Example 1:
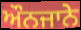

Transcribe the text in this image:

ਔਨਜਾਨੇ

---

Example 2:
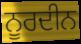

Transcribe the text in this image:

ਨੂਰਦੀਨ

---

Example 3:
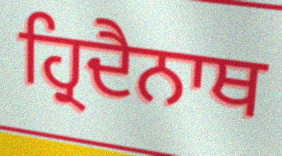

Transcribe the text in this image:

ਹ੍ਰਿਦੈਨਾਥ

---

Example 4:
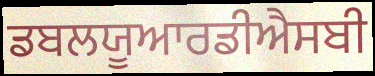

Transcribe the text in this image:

ਡਬਲਯੂਆਰਡੀਐਸਬੀ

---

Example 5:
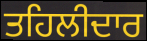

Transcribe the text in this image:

ਤਹਿਲੀਦਾਰ